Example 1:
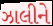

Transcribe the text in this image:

ઝાલીને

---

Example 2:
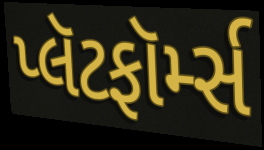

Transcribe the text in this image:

પ્લૅટફૉર્મ્સ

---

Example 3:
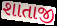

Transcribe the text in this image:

શાતાજી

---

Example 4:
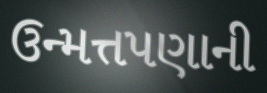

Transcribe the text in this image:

ઉન્મત્તપણાની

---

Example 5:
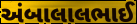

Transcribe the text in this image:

અંબાલાલભાઈ